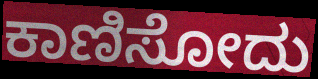
ಕಾಣಿಸೋದು